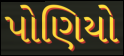
પોણિયો